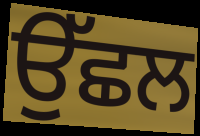
ਉੱਛਲ